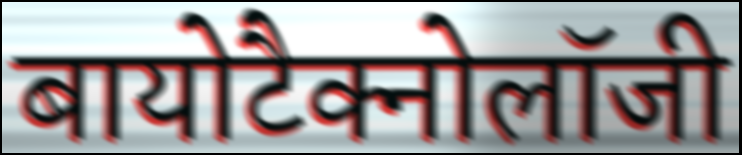
बायोटैक्नोलॉजी